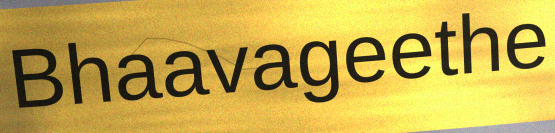
Bhaavageethe